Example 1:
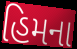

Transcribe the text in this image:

હિમના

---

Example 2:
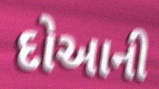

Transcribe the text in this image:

દોઆની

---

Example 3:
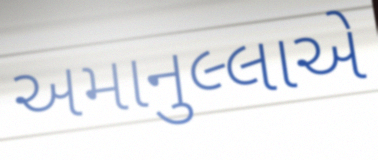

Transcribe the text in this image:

અમાનુલ્લાએ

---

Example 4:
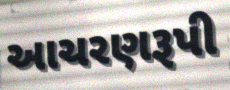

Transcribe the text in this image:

આચરણરૂપી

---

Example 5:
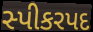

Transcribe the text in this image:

સ્પીકરપદ